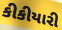
કીકીયારી